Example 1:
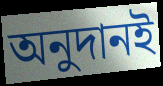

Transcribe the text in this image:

অনুদানই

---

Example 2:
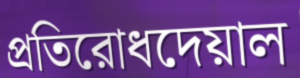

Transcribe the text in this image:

প্রতিরোধদেয়াল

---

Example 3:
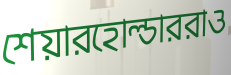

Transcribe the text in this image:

শেয়ারহোল্ডাররাও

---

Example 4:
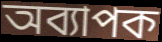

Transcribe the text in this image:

অব্যাপক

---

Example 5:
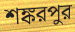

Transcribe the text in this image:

শঙ্করপুর